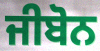
ਜੀਬੋਨ